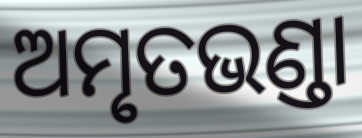
ଅମୃତଭଣ୍ଡା